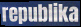
republika